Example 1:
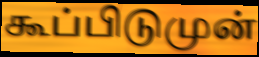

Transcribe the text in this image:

கூப்பிடுமுன்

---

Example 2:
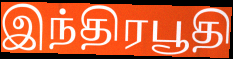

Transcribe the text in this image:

இந்திரபூதி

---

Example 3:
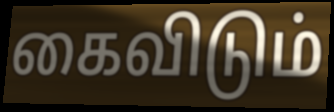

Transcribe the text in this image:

கைவிடும்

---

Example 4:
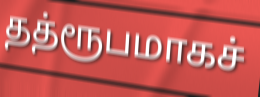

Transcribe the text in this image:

தத்ரூபமாகச்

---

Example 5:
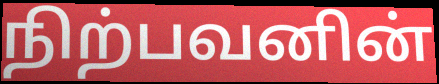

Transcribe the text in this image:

நிற்பவனின்